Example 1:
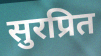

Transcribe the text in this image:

सुरप्रित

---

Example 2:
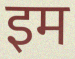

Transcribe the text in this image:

इम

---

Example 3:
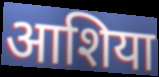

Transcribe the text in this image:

आशिया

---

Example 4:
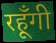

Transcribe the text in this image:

रहूँगी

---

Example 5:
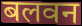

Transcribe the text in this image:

बलवन